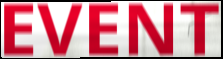
EVENT